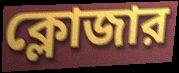
ক্লোজার